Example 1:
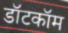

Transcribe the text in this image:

डॉटकॉम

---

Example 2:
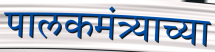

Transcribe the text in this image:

पालकमंत्र्याच्या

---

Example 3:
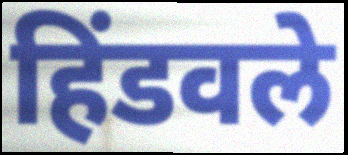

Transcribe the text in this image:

हिंडवले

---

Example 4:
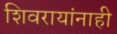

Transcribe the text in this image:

शिवरायांनाही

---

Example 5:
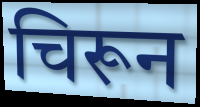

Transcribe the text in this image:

चिरून